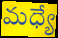
మధ్యే